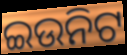
ଇଉନିଟ